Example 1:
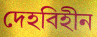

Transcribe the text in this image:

দেহবিহীন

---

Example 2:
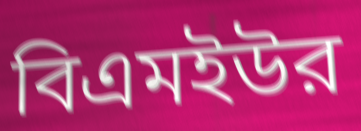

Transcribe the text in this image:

বিএমইউর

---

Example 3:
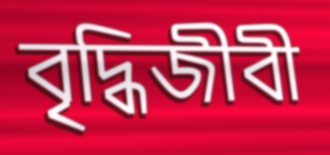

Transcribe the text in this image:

বৃদ্ধিজীবী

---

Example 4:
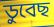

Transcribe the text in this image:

ডুবেছ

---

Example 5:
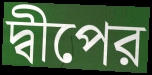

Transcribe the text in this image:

দ্বীপের